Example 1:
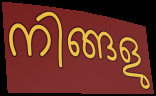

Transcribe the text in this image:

നിങ്ങളു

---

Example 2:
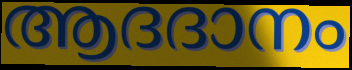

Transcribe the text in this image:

ആദദാനം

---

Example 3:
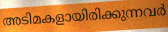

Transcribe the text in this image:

അടിമകളായിരിക്കുന്നവർ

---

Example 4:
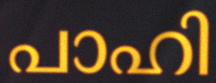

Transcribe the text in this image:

പാഹി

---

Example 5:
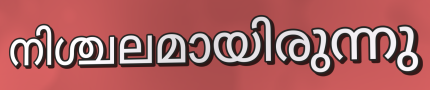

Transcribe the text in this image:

നിശ്ചലമായിരുന്നു